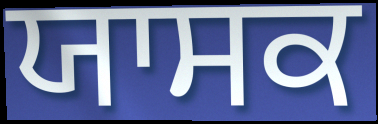
ਯਾਸਕ